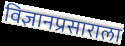
विज्ञानप्रसाराला